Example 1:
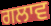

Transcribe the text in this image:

ਗਲਾਵ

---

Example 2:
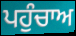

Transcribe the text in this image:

ਪਹੁੰਚਾਅ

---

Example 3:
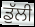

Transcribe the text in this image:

ਡੁੱਲੀ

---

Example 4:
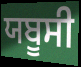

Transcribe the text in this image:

ਯਬੂਸੀ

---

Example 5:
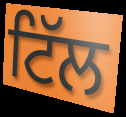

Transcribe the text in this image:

ਟਿੱਲ